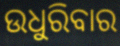
ଉଧୁରିବାର